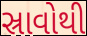
સ્રાવોથી